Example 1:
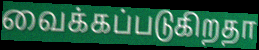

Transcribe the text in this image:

வைக்கப்படுகிறதா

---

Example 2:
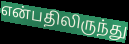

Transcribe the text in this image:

என்பதிலிருந்து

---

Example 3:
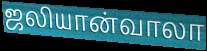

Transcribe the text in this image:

ஜலியான்வாலா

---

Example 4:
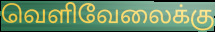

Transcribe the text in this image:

வெளிவேலைக்கு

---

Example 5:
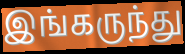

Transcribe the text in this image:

இங்கருந்து